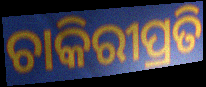
ଚାକିରୀପ୍ରତି